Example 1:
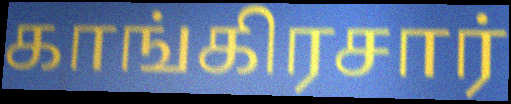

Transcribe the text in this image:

காங்கிரசார்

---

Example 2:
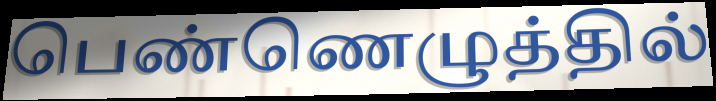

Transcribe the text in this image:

பெண்ணெழுத்தில்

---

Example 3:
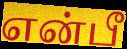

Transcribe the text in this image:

என்பீ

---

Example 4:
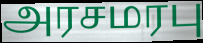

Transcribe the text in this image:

அரசமரபு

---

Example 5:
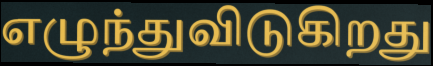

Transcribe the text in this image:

எழுந்துவிடுகிறது